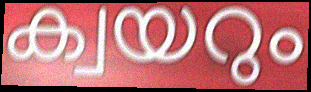
ക്വയറും